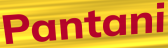
Pantani